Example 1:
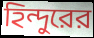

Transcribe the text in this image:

হিন্দুরের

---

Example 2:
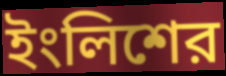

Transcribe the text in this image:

ইংলিশের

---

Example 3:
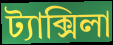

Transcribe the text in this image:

ট্যাক্সিলা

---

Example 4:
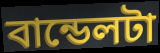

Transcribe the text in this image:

বান্ডেলটা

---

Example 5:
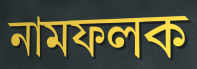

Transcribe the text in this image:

নামফলক